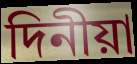
দিনীয়া